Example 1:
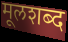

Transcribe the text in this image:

मूलशब्द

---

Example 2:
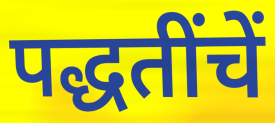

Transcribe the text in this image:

पद्धतींचें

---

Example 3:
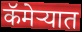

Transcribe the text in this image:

कॅमेर्‍यात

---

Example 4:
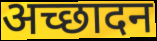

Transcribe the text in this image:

अच्छादन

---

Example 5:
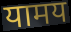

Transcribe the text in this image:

यामय